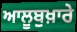
ਆਲੂਬੁਖ਼ਾਰੇ